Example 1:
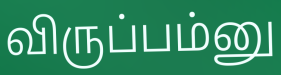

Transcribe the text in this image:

விருப்பம்னு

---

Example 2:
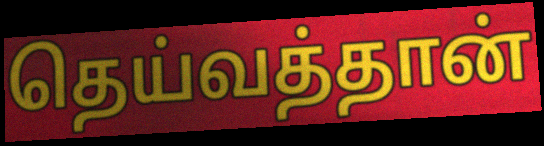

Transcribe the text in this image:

தெய்வத்தான்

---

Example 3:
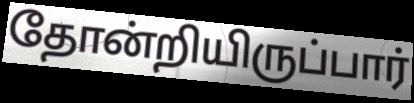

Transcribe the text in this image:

தோன்றியிருப்பார்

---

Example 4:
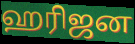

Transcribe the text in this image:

ஹரிஜன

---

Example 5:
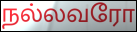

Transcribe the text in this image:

நல்லவரோ